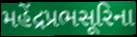
મહેંદ્રપ્રભસૂરિના